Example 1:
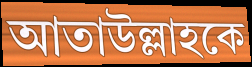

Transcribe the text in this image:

আতাউল্লাহকে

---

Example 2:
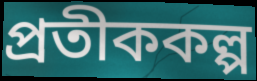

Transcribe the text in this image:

প্রতীককল্প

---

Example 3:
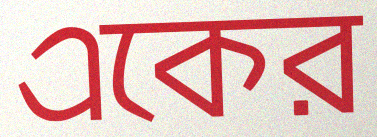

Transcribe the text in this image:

একের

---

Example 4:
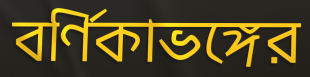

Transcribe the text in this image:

বর্ণিকাভঙ্গের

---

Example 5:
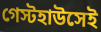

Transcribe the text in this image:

গেস্টহাউসেই